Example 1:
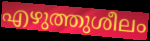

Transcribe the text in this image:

എഴുത്തുശീലം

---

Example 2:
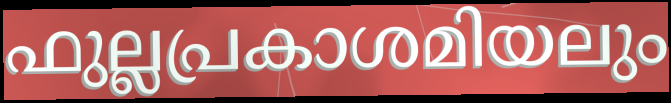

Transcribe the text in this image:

ഫുല്ലപ്രകാശമിയലും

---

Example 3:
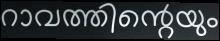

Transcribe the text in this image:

റാവത്തിന്റെയും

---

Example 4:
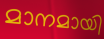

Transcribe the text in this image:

മാനമായി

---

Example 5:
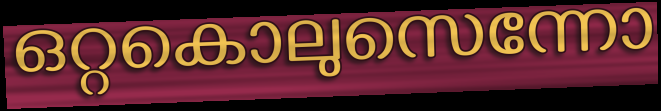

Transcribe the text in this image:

ഒറ്റകൊലുസെന്നോ